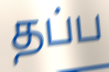
தப்ப